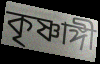
কৃষ্ণাঙ্গী